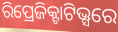
ରିପ୍ରେଜିକ୍ଟାଟିଭ୍ସରେ